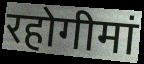
रहोगीमां